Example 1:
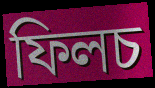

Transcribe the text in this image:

ফিলচ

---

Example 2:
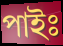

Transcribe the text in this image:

পাইঃ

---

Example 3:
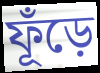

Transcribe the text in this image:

ফূঁড়ে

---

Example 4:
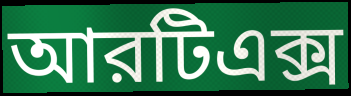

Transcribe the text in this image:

আরটিএক্স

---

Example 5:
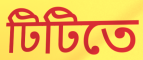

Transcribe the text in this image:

টিটিতে